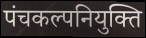
पंचकल्पनियुक्ति